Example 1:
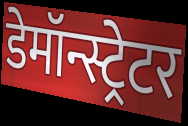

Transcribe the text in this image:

डेमॉन्स्ट्रेटर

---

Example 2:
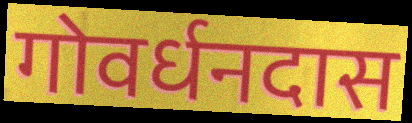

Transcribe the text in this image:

गोवर्धनदास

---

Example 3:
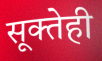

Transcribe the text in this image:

सूक्तेही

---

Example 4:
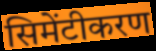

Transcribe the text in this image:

सिमेंटीकरण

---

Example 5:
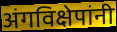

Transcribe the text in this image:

अंगविक्षेपांनी